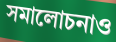
সমালোচনাও